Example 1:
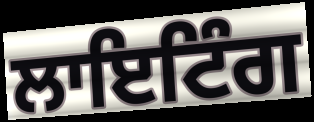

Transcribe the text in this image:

ਲਾਇਟਿੰਗ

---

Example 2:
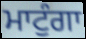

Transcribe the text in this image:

ਮਾਟੁੰਗਾ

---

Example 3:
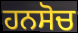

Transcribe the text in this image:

ਹਨਸੋਚ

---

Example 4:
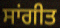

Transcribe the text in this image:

ਸਾਂਗੀਤ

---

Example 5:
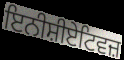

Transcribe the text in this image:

ਇਨੀਸ਼ੀਏਟਿਵਜ਼